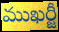
ముఖర్జీ